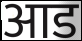
आड